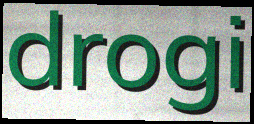
drogi